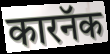
कारनॅक